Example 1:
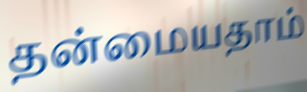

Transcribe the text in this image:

தன்மையதாம்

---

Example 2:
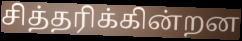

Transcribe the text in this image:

சித்தரிக்கின்றன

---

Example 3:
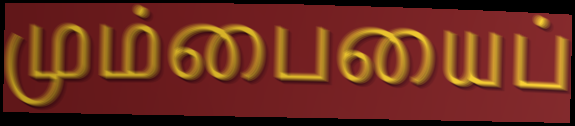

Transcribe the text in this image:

மும்பையைப்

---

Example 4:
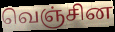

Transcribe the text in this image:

வெஞ்சின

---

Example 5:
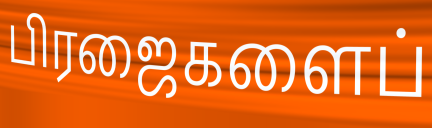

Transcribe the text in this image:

பிரஜைகளைப்